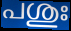
പശുഃ